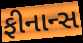
ફીનાન્સ